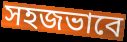
সহজভাবে